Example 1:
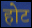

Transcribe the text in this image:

होट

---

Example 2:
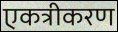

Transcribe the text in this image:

एकत्रीकरण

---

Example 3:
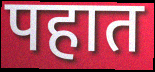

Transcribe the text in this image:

पहात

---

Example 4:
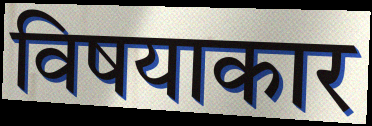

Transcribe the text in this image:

विषयाकार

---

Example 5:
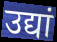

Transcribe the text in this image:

उद्यां